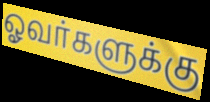
ஓவர்களுக்கு